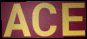
ACE